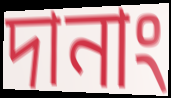
দানাং